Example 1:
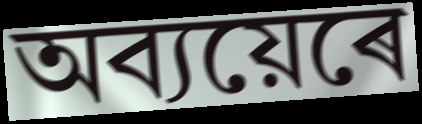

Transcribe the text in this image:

অব্যয়েৰে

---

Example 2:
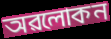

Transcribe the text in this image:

অৱলোকন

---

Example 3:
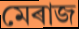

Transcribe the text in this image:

মেৰাজ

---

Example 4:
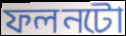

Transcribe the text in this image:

ফলনটো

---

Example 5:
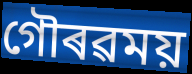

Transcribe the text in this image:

গৌৰৱময়